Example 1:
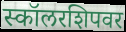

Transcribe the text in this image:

स्कॉलरशिपवर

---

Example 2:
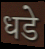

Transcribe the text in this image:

धडे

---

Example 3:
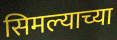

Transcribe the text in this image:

सिमल्याच्या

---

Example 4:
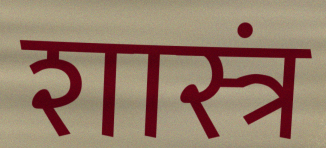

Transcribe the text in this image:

शास्त्रं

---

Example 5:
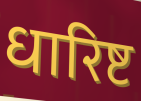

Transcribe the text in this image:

धारिष्ट